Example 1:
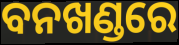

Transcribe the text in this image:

ବନଖଣ୍ଡରେ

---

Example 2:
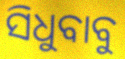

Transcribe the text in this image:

ସିଧୁବାବୁ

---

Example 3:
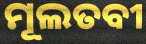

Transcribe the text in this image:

ମୂଲତବୀ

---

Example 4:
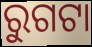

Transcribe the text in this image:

ରୁଗଟା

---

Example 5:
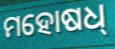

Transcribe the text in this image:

ମହୋଷଧ୍